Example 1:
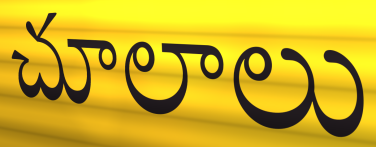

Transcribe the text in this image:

చూలాలు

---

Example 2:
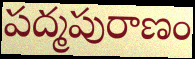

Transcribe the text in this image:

పద్మపురాణం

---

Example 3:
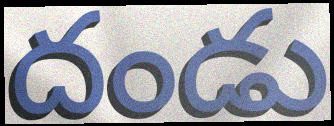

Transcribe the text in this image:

దండు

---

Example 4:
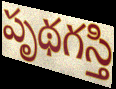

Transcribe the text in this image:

పృథగస్తి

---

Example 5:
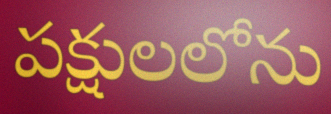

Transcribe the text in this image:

పక్షులలోను